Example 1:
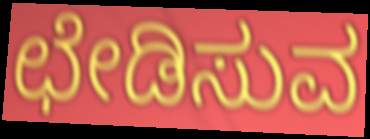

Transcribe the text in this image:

ಛೇಡಿಸುವ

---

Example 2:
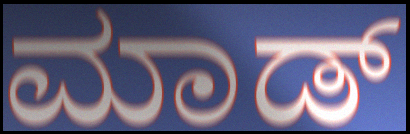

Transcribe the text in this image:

ಮಾಡ್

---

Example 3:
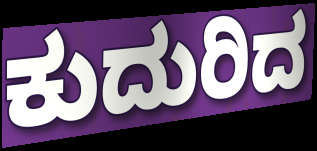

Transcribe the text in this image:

ಕುದುರಿದ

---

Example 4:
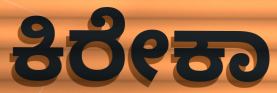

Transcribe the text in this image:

ಕಿರೇಕಾ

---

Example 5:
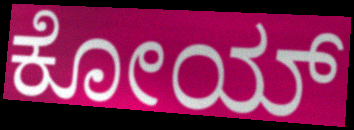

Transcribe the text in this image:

ಕೋಯ್